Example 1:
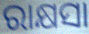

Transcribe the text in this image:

ରାକ୍ଷସା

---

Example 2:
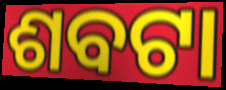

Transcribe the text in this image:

ଶବଟା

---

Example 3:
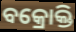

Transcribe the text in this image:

ବକ୍ରୋକ୍ତି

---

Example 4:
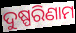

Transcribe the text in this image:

ଦୁଷ୍ପରିଣାମ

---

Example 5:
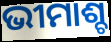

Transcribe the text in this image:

ଭୀମାଶ୍ଚ